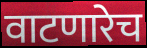
वाटणारेच